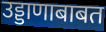
उड्डाणाबाबत